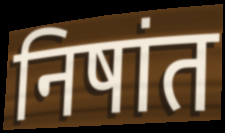
निषांत